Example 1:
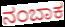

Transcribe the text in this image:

ನಂಬಾಕ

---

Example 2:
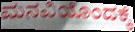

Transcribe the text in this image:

ಮನವಿಯೊಂದಕ್ಕೆ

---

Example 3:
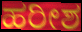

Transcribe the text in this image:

ಹರೀಶ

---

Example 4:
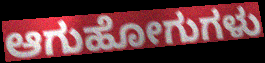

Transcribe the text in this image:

ಆಗುಹೋಗುಗಳು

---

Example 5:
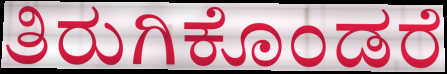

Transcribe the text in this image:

ತಿರುಗಿಕೊಂಡರೆ